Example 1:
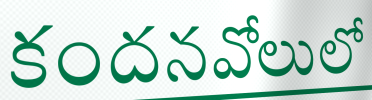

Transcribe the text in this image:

కందనవోలులో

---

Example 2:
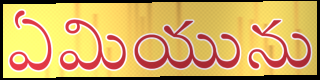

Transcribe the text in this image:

ఏమియును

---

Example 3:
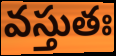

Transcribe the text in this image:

వస్తుతః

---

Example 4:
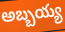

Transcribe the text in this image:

అబ్బయ్య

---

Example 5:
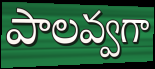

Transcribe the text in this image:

పాలవ్వగా